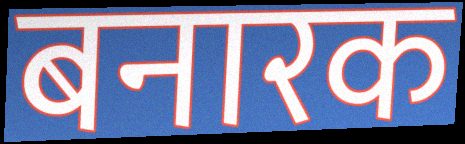
बनारक